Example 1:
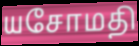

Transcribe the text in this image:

யசோமதி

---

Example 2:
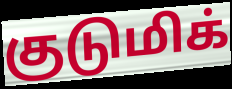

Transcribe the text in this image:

குடுமிக்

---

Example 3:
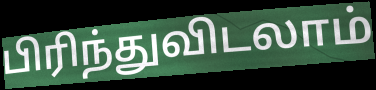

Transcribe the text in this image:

பிரிந்துவிடலாம்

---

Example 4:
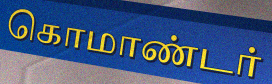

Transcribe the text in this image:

கொமாண்டர்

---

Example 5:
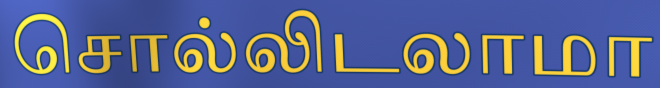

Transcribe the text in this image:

சொல்லிடலாமா